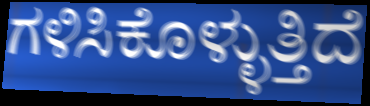
ಗಳಿಸಿಕೊಳ್ಳುತ್ತಿದೆ